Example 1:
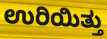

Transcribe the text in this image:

ಉರಿಯಿತ್ತು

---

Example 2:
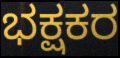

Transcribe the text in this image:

ಭಕ್ಷಕರ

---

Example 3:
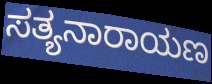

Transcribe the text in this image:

ಸತ್ಯನಾರಾಯಣ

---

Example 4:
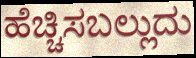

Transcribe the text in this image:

ಹೆಚ್ಚಿಸಬಲ್ಲುದು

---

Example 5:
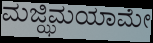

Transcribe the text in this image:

ಮಜ್ಝಿಮಯಾಮೇ